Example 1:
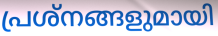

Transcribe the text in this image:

പ്രശ്നങ്ങളുമായി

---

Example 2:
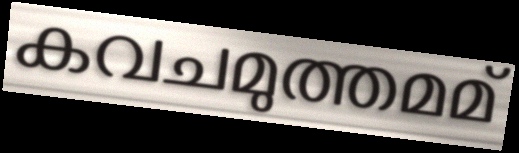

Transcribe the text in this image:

കവചമുത്തമമ്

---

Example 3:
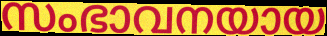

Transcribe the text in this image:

സംഭാവനയായ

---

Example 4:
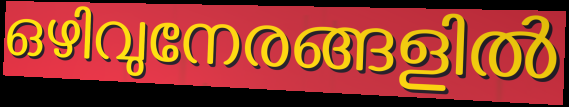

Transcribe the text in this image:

ഒഴിവുനേരങ്ങളിൽ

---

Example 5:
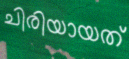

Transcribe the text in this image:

ചിരിയായത്